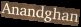
Anandghan